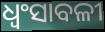
ଧ୍ୱଂସାବଳୀ